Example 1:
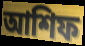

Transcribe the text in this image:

আশিফ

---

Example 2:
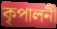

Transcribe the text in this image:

কৃপালনী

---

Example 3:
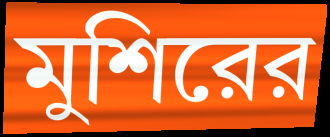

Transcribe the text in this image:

মুশিরের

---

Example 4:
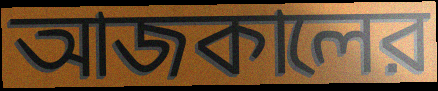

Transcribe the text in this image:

আজকালের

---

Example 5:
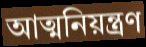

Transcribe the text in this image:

আত্মনিয়ন্ত্রণ